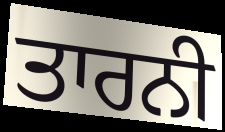
ਤਾਰਨੀ